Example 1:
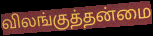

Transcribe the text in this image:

விலங்குத்தன்மை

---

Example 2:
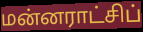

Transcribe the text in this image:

மன்னராட்சிப்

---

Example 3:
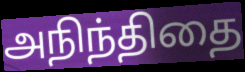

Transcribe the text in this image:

அநிந்திதை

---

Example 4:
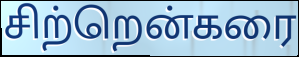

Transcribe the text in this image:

சிற்றென்கரை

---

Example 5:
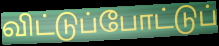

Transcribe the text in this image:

விட்டுப்போட்டுப்